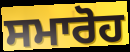
ਸਮਾਰੋਹ